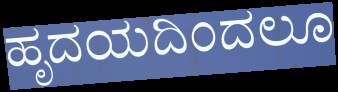
ಹೃದಯದಿಂದಲೂ